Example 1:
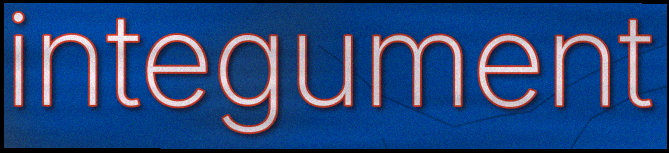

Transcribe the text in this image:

integument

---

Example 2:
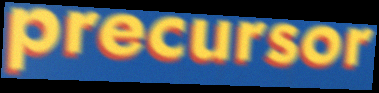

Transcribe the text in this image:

precursor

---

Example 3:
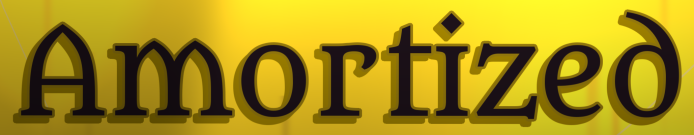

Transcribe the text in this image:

Amortized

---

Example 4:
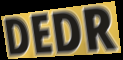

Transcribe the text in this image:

DEDR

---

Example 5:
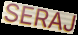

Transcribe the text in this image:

SERAJ